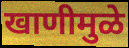
खाणीमुळे